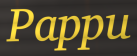
Pappu